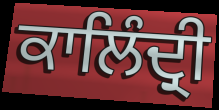
ਕਾਲਿੰਦ੍ਰੀ